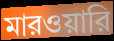
মারওয়ারি